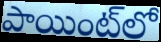
పాయింట్‌లో